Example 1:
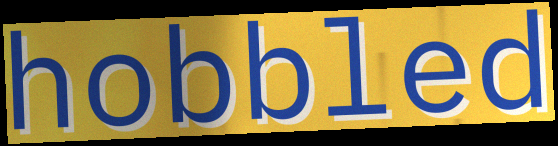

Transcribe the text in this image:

hobbled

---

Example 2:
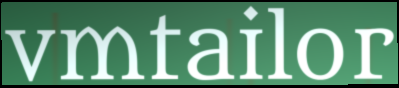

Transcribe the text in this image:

vmtailor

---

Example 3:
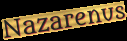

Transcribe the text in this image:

Nazarenus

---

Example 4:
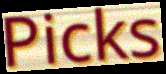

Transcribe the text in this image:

Picks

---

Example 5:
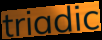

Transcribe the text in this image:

triadic